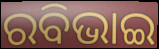
ରବିଭାଇ